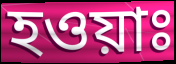
হওয়াঃ